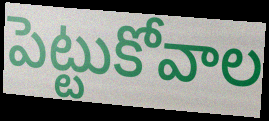
పెట్టుకోవాల